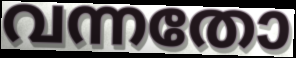
വന്നതോ